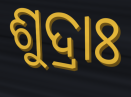
ଶୁଦ୍ରାଃ